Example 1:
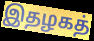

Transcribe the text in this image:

இதழகத்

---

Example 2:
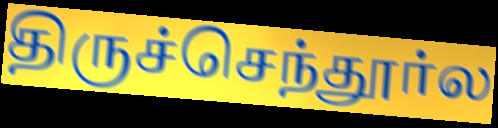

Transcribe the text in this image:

திருச்செந்தூர்ல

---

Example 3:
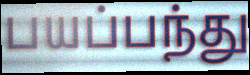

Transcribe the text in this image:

பயப்பந்து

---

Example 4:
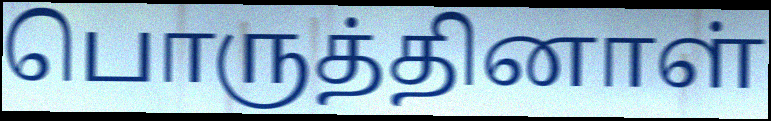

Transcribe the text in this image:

பொருத்தினாள்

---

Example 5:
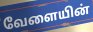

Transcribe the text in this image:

வேளையின்